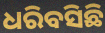
ଧରିବସିଛି